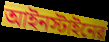
আইনস্টাইনের